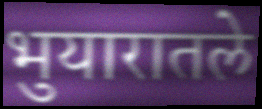
भुयारातले